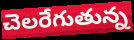
చెలరేగుతున్న